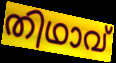
തിഥാവ്